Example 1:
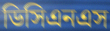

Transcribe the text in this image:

ডিসিএনএস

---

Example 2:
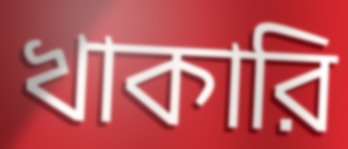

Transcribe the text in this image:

খাকারি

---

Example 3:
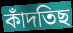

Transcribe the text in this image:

কাঁদতিছ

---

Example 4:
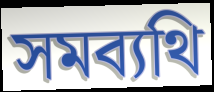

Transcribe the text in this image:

সমব্যথি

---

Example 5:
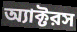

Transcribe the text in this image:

অ্যাক্টরস